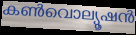
കൺവൊല്യൂഷൻ